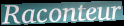
Raconteur